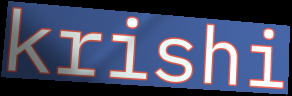
krishi